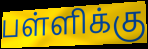
பள்ளிக்கு